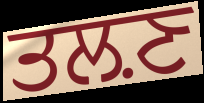
ਤਲ਼ਣ